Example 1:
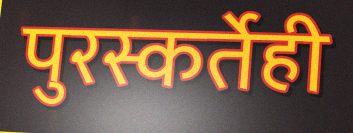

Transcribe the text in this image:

पुरस्कर्तेही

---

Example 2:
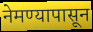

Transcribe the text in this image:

नेमण्यापासून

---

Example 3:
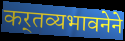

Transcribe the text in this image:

कर्तव्यभावनेने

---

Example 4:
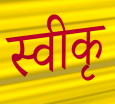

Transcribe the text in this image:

स्वीकृ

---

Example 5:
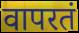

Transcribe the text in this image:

वापरतं